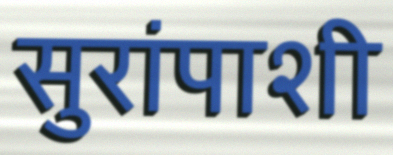
सुरांपाशी